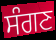
ਸੰਗਣ